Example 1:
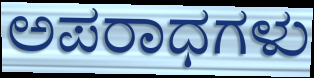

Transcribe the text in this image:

ಅಪರಾಧಗಳು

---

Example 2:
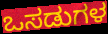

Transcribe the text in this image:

ಒಸಡುಗಳ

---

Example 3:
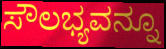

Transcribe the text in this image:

ಸೌಲಭ್ಯವನ್ನೂ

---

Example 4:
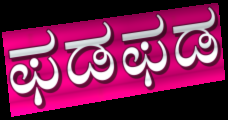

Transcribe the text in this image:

ಫಡಫಡ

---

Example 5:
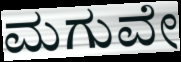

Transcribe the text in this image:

ಮಗುವೇ